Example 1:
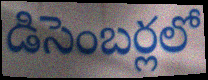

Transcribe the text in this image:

డిసెంబర్లలో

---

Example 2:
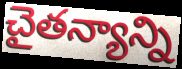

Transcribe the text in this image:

చైతన్యాన్ని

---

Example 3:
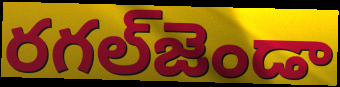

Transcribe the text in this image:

రగల్‌జెండా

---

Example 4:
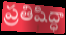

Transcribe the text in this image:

ప్రతిషిద్ధా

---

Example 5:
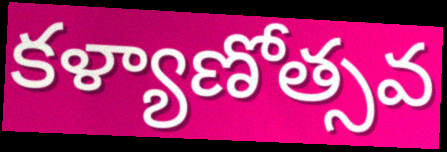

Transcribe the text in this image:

కళ్యాణోత్సవ